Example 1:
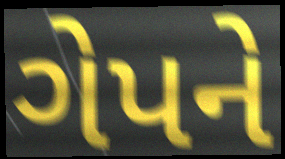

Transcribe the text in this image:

ગેપને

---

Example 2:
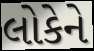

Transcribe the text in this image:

લોકેને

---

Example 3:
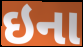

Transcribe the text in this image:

ઇના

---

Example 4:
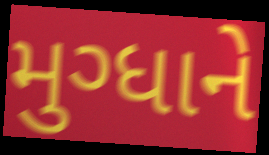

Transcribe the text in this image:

મુગ્ધાને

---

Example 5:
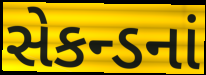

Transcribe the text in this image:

સેકન્ડનાં